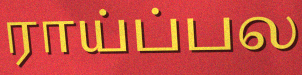
ராய்ப்பல